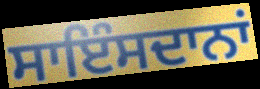
ਸਾਇੰਸਦਾਨਾਂ